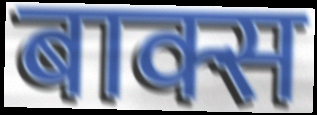
बाक्स